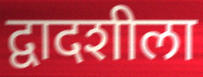
द्वादशीला